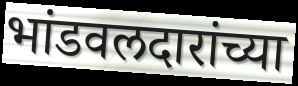
भांडवलदारांच्या